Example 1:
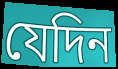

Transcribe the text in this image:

যেদিন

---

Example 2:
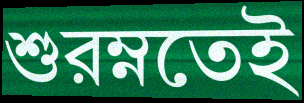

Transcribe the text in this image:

শুরম্নতেই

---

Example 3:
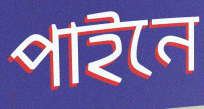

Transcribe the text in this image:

পাইনে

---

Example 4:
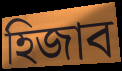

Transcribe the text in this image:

হিজাব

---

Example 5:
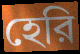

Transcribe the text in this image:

হেরি